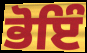
ਭੋਇੰ